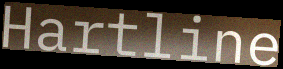
Hartline